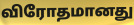
விரோதமானது